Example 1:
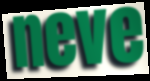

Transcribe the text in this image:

neve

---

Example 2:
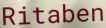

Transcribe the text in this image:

Ritaben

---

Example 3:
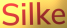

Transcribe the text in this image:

Silke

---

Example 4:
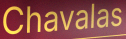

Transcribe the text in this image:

Chavalas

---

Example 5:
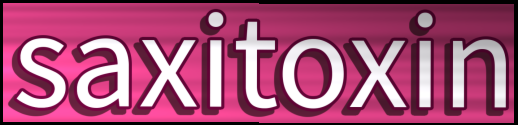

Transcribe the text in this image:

saxitoxin